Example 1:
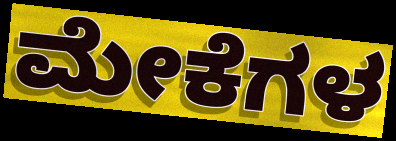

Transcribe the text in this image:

ಮೇಕೆಗಳ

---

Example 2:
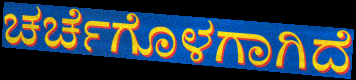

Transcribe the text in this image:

ಚರ್ಚೆಗೊಳಗಾಗಿದೆ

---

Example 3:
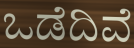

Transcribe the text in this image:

ಒಡೆದಿವೆ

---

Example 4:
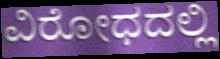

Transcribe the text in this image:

ವಿರೋಧದಲ್ಲಿ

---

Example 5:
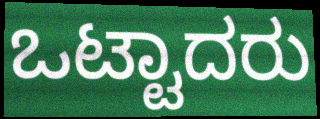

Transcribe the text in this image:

ಒಟ್ಟಾದರು